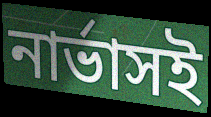
নার্ভাসই